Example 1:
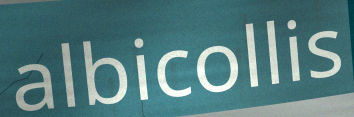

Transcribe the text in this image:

albicollis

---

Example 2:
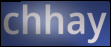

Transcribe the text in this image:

chhay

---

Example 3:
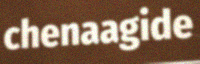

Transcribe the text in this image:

chenaagide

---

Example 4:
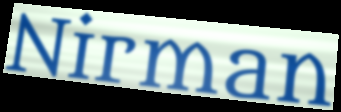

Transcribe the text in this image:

Nirman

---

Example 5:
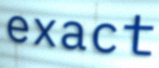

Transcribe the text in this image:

exact